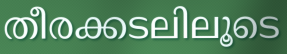
തീരക്കടലിലൂടെ